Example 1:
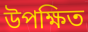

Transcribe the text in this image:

উপক্ষিত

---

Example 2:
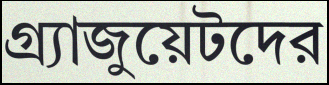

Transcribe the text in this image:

গ্র্যাজুয়েটদের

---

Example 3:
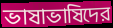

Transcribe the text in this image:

ভাষাভাষিদের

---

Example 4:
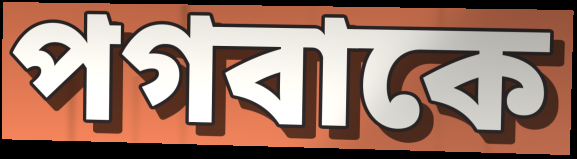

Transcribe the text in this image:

পগবাকে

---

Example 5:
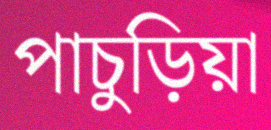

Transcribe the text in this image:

পাচুড়িয়া